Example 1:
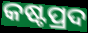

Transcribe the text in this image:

କଷ୍ଟପ୍ରଦ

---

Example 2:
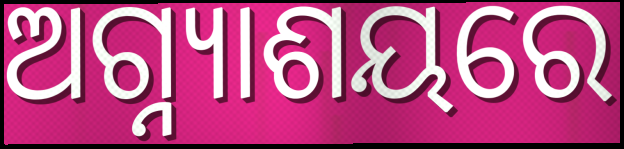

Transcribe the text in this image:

ଅଗ୍ନ୍ୟାଶୟରେ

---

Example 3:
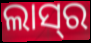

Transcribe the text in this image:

ଲାସ୍‍ର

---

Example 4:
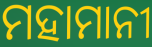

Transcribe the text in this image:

ମହାମାନୀ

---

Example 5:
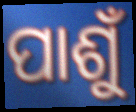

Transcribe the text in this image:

ପାଶୁଁ